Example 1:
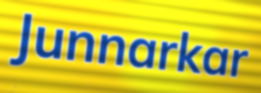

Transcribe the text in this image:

Junnarkar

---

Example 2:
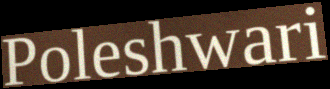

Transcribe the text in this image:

Poleshwari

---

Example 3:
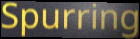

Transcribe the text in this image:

Spurring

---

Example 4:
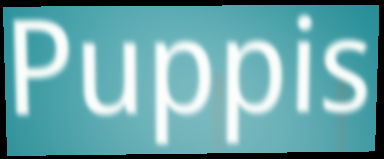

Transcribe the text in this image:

Puppis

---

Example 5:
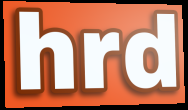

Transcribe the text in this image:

hrd